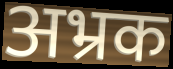
अभ्रक